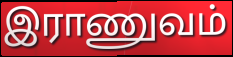
இராணுவம்